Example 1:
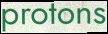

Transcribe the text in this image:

protons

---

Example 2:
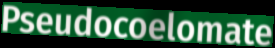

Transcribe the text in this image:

Pseudocoelomate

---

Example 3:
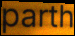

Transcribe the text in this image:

parth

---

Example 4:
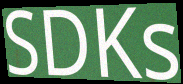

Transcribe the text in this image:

SDKs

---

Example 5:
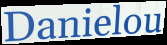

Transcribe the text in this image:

Danielou